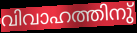
വിവാഹത്തിനു്